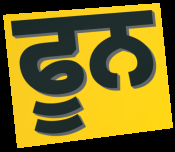
ਫੂਨ